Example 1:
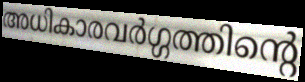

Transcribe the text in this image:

അധികാരവർഗ്ഗത്തിന്റെ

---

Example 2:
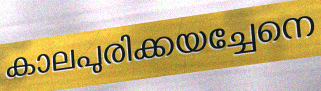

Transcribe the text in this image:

കാലപുരിക്കയച്ചേനെ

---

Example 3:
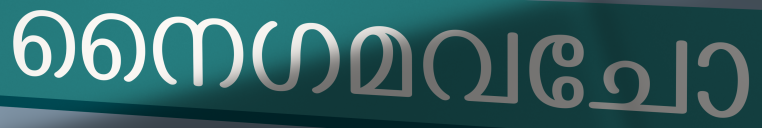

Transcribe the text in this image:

നൈഗമവചോ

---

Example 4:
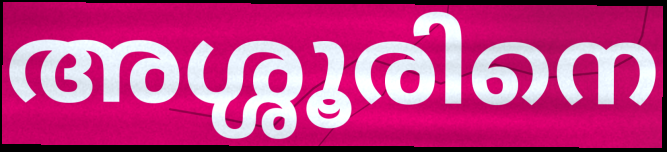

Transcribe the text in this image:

അശ്ശൂരിനെ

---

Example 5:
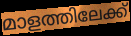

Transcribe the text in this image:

മാളത്തിലേക്ക്